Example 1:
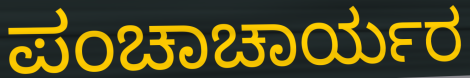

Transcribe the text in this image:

ಪಂಚಾಚಾರ್ಯರ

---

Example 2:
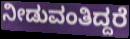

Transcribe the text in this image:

ನೀಡುವಂತಿದ್ದರೆ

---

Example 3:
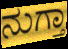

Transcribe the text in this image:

ನುಗ್ತಾ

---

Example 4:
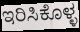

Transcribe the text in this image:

ಇರಿಸಿಕೊಳ್ಳ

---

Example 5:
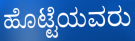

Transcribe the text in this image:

ಹೊಟ್ಟೆಯವರು